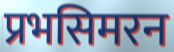
प्रभसिमरन